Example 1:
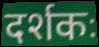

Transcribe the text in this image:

दर्शकः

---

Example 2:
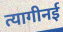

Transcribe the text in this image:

त्यागीनई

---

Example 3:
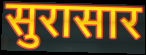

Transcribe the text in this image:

सुरासार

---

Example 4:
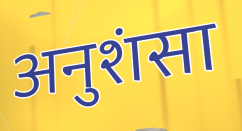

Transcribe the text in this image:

अनुशंसा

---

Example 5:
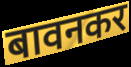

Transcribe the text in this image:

बावनकर